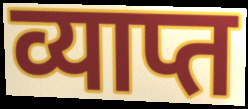
व्याप्त